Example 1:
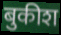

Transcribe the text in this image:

बुकीश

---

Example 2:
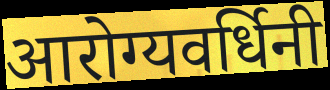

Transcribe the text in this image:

आरोग्यवर्धिनी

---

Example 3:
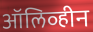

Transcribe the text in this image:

ऑलिव्हीन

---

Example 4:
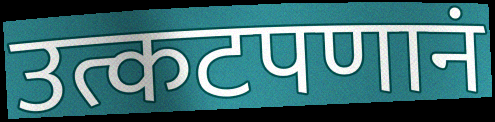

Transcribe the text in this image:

उत्कटपणानं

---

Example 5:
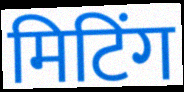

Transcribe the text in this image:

मिटिंग